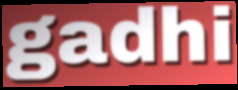
gadhi